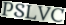
PSLVC